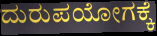
ದುರುಪಯೋಗಕ್ಕೆ